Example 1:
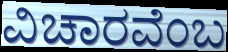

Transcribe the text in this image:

ವಿಚಾರವೆಂಬ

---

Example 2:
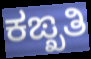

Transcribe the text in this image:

ಕಙ್ಖತಿ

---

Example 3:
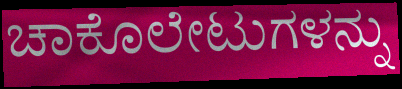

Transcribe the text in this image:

ಚಾಕೊಲೇಟುಗಳನ್ನು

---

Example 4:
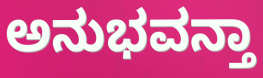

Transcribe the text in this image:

ಅನುಭವನ್ತಾ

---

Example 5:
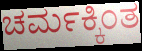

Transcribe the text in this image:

ಚರ್ಮಕ್ಕಿಂತ